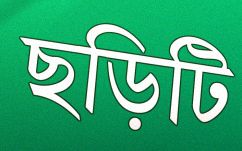
ছড়িটি